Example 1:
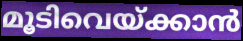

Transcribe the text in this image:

മൂടിവെയ്ക്കാൻ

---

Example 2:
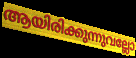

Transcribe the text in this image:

ആയിരിക്കുന്നുവല്ലോ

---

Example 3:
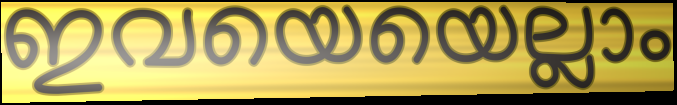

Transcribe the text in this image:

ഇവയെയെല്ലാം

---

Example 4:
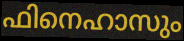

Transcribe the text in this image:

ഫിനെഹാസും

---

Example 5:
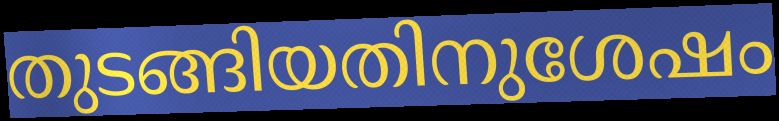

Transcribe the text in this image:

തുടങ്ങിയതിനുശേഷം